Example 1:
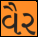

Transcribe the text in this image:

વૈર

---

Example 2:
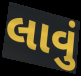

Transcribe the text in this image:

લાવું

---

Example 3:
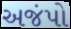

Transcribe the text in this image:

અજંપો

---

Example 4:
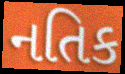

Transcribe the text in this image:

નતિક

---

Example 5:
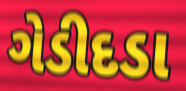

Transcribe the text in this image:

ગેડીદડા